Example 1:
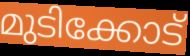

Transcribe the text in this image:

മുടിക്കോട്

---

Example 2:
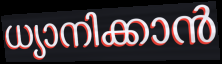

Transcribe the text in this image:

ധ്യാനിക്കാൻ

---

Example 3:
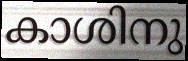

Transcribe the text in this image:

കാശിനു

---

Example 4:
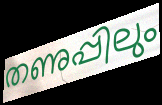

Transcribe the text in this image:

തണുപ്പിലും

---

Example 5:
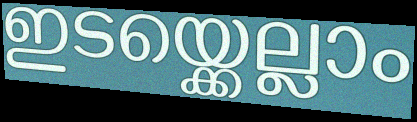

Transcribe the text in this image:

ഇടയ്ക്കെല്ലാം